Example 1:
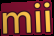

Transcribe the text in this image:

mii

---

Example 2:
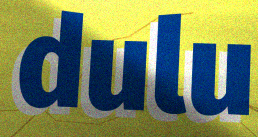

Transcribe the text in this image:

dulu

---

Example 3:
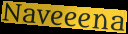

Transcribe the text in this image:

Naveeena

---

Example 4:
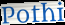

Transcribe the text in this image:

Pothi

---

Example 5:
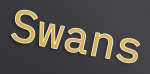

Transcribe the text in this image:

Swans